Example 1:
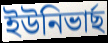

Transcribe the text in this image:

ইউনিভাৰ্ছ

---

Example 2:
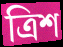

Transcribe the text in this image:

ত্ৰিশ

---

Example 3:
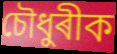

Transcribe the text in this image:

চৌধুৰীক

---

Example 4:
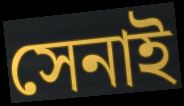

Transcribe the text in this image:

সেনাই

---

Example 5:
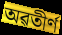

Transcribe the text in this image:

অৱতীৰ্ণ